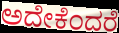
ಅದೇಕೆಂದರೆ